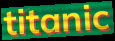
titanic